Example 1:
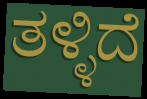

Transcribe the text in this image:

ತಳ್ಳಿದೆ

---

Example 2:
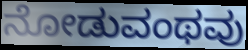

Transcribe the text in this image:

ನೋಡುವಂಥವು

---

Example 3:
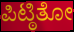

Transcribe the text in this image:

ಪಿಟ್ಠಿತೋ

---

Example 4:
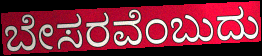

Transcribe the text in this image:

ಬೇಸರವೆಂಬುದು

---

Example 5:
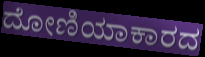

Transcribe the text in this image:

ದೋಣಿಯಾಕಾರದ